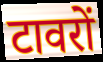
टावरों